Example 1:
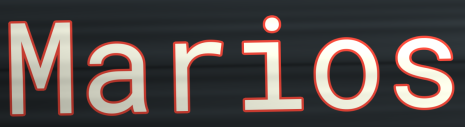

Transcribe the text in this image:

Marios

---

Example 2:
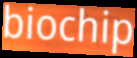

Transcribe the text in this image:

biochip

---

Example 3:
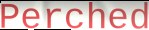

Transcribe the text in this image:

Perched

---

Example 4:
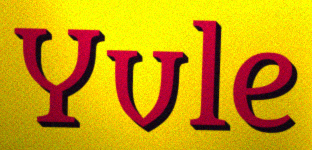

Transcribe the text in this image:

Yule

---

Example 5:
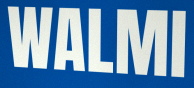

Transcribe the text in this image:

WALMI